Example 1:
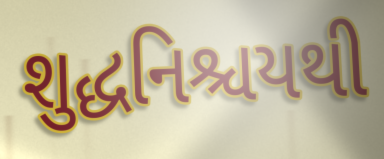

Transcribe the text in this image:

શુદ્ધનિશ્ચયથી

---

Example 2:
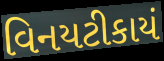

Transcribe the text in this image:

વિનયટીકાયં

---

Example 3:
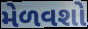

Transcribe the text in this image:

મેળવશો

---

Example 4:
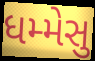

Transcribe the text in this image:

ધમ્મેસુ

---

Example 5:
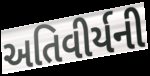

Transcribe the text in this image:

અતિવીર્યની